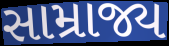
સામ્રાજ્ય